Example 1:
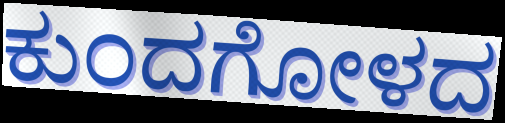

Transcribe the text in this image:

ಕುಂದಗೋಳದ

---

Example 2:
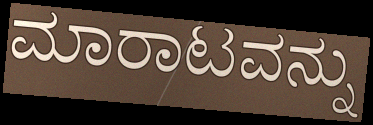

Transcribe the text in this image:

ಮಾರಾಟವನ್ನು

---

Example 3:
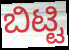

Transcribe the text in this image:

ಬಿಟ್ಟಿ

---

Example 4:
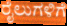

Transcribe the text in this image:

ರೈಲುಗಳಿಗೆ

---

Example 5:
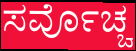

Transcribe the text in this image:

ಸರ್ವೊಚ್ಚ